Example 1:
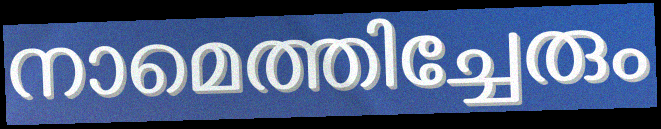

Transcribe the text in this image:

നാമെത്തിച്ചേരും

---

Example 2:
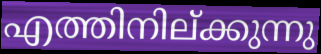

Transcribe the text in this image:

എത്തിനില്ക്കുന്നു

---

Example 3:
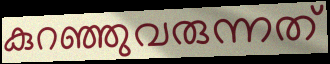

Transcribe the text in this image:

കുറഞ്ഞുവരുന്നത്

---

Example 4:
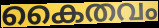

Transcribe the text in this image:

കൈതവം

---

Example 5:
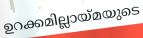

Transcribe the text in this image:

ഉറക്കമില്ലായ്മയുടെ